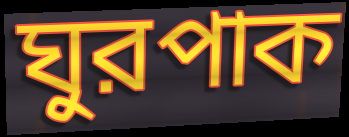
ঘুরপাক